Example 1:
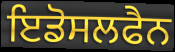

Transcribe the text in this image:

ਇਡੋਸਲਫੈਨ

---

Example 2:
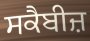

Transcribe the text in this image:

ਸਕੈਬੀਜ਼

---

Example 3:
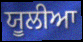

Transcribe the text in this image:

ਯੂਲੀਆ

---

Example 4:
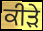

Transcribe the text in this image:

ਕੀੜੇ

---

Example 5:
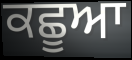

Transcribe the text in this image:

ਕਛੂਆ